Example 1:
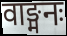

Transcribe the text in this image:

वाङ्मनः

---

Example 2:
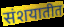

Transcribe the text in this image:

संशयातीत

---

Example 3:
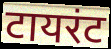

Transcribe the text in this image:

टायरंट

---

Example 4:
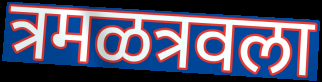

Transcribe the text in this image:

त्रमळत्रवला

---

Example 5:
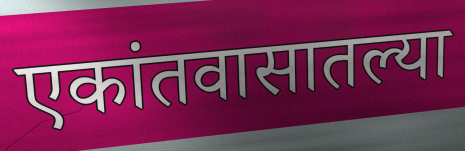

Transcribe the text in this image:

एकांतवासातल्या